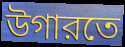
উগারতে